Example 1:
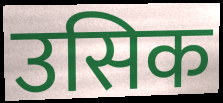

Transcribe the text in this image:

उसिक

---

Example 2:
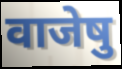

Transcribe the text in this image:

वाजेषु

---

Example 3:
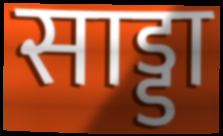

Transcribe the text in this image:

साड्डा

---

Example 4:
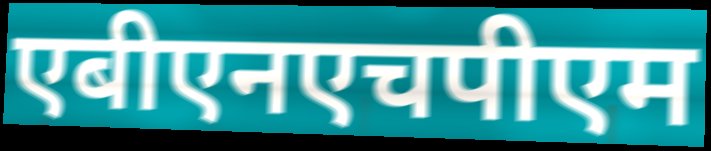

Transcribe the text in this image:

एबीएनएचपीएम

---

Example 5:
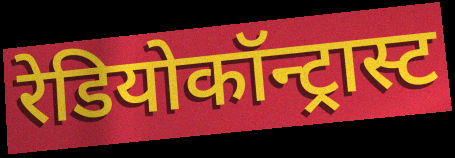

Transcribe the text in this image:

रेडियोकॉन्ट्रास्ट